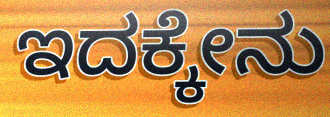
ಇದಕ್ಕೇನು